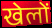
खेलों